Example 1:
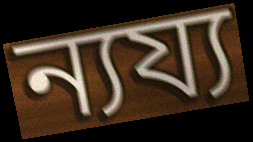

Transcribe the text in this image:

ন্যয্য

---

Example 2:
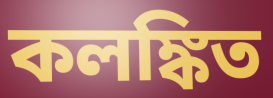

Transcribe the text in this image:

কলঙ্কিত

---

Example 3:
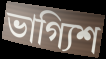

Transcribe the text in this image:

ভাগ্যিশ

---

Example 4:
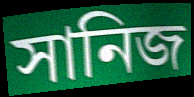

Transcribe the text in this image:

সানিজ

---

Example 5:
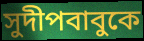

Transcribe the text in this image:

সুদীপবাবুকে